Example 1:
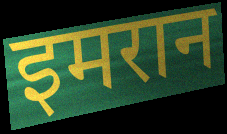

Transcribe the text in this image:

इमरान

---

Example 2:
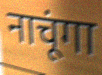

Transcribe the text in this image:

नाचूंगा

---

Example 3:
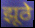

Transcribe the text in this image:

झूठे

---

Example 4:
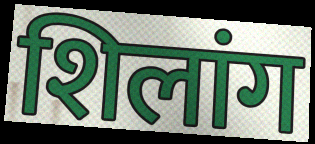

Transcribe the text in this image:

शिलांग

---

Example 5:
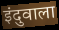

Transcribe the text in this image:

इंदुवाला